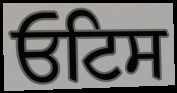
ਓਟਿਸ